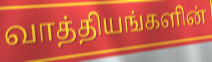
வாத்தியங்களின்